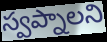
స్వప్నాలని